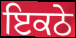
ਇਕਠੇ